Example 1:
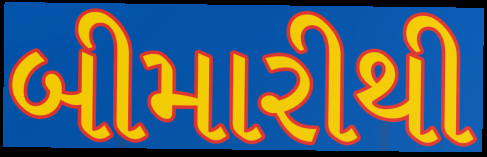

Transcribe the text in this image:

બીમારીથી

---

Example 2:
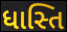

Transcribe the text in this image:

ધાસ્તિ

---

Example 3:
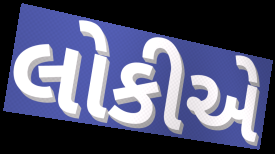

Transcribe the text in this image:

લોકીએ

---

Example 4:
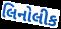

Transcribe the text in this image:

લિનોલીક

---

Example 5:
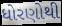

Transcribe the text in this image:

ધોરણોથી